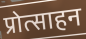
प्रोत्साहन